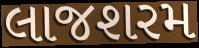
લાજશરમ